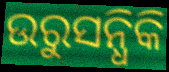
ଉରୁସନ୍ଧିକି